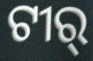
ଟୀର୍